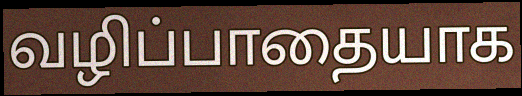
வழிப்பாதையாக